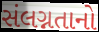
સંલગ્નતાનો